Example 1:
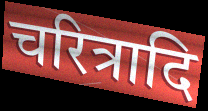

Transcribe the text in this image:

चरित्रादि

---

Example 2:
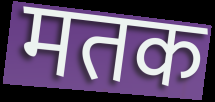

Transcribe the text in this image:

मतक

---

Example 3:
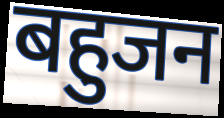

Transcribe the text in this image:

बहुजन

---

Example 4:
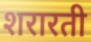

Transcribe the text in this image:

शरारती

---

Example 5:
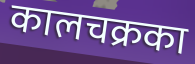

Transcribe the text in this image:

कालचक्रका